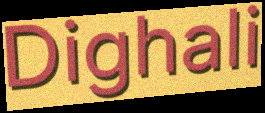
Dighali